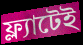
ফ্ল্যাটেই